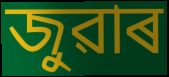
জুৱাৰ